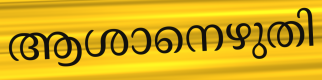
ആശാനെഴുതി